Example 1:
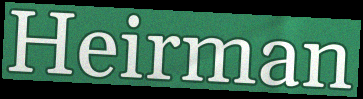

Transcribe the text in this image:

Heirman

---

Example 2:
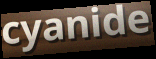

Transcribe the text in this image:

cyanide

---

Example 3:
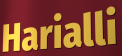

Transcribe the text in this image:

Harialli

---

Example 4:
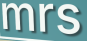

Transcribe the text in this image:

mrs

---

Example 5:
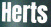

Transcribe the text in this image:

Herts